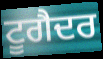
ਟੂਗੈਦਰ